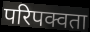
परिपक्वता